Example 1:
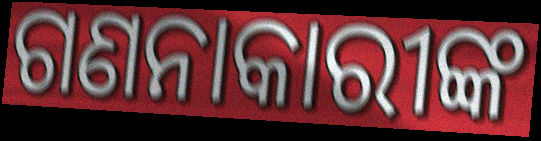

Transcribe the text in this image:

ଗଣନାକାରୀଙ୍କ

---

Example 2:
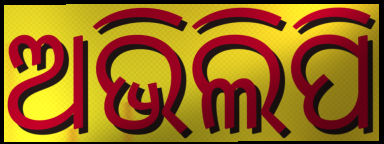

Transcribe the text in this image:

ଅଭିଲିପି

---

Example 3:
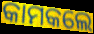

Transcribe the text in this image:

କାମକଲେ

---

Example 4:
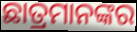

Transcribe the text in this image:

ଛାତ୍ରମାନଙ୍କର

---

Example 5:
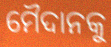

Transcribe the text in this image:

ମୈଦାନକୁ